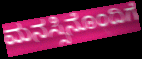
ಮನಸ್ಸಿನೊಂದಿಗೆ